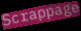
Scrappage